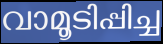
വാമൂടിപ്പിച്ച